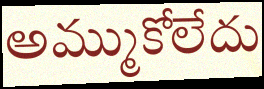
అమ్ముకోలేదు